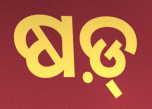
ଷଡ଼୍